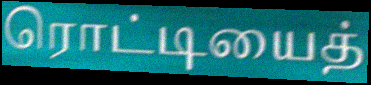
ரொட்டியைத்